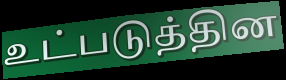
உட்படுத்தின